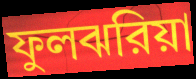
ফুলঝরিয়া